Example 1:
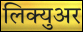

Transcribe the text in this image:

लिक्युअर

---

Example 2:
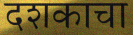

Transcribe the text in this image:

दशकाचा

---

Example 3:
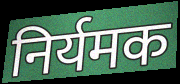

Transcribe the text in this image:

निर्यमक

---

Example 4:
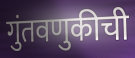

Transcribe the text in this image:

गुंतवणुकीची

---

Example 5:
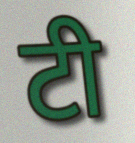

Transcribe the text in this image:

टी